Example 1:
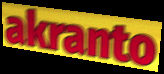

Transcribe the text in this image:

akranto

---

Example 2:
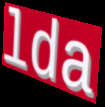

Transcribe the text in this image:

lda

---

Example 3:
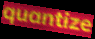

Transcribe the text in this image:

quantize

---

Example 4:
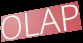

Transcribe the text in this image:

OLAP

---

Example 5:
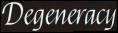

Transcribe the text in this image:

Degeneracy